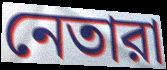
নেতারা